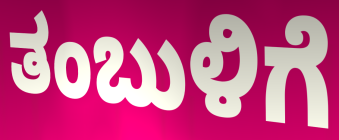
ತಂಬುಳಿಗೆ